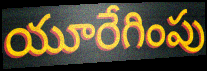
యూరేగింపు